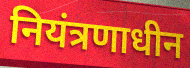
नियंत्रणाधीन